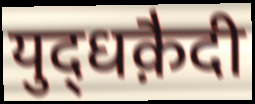
युद्धक़ैदी